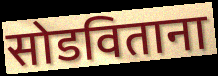
सोडविताना